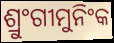
ଶ୍ରୁଂଗୀମୁନିଂକ